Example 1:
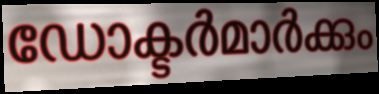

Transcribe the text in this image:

ഡോക്ടർമാർക്കും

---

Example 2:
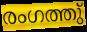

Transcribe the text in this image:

രംഗത്തു്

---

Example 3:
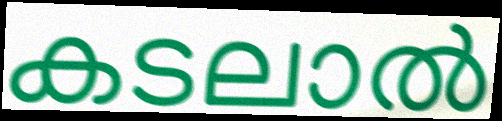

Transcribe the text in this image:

കടലാൽ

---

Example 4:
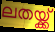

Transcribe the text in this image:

ലതയ്ക്ക്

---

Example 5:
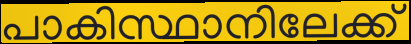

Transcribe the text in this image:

പാകിസ്ഥാനിലേക്ക്